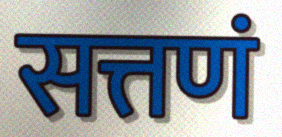
सत्तणं